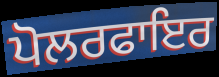
ਪੋਲਰਫਾਇਰ